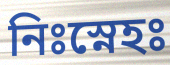
নিঃস্নেহঃ